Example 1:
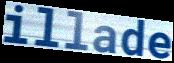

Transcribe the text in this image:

illade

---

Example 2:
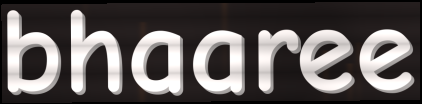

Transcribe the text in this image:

bhaaree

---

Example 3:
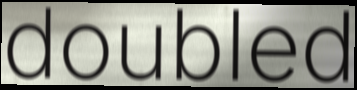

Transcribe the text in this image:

doubled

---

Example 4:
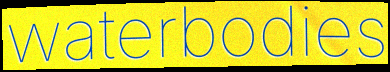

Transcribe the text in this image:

waterbodies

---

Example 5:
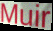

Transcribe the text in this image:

Muir